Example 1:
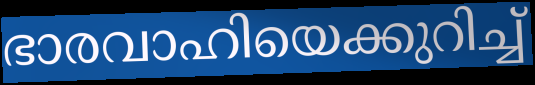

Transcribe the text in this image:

ഭാരവാഹിയെക്കുറിച്ച്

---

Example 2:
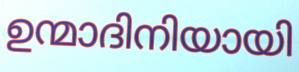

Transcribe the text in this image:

ഉന്മാദിനിയായി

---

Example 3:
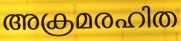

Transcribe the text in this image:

അക്രമരഹിത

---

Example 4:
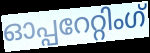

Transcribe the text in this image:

ഓപ്പറേറ്റിംഗ്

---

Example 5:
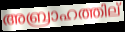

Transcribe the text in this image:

അബ്രാഹത്തില്